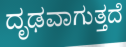
ದೃಢವಾಗುತ್ತದೆ